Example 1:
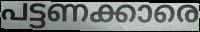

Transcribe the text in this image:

പട്ടണക്കാരെ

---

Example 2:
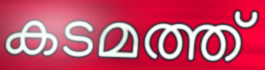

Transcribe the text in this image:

കടമത്ത്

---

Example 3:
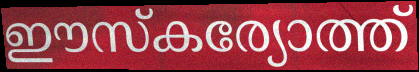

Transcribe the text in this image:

ഈസ്കര്യോത്ത്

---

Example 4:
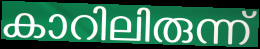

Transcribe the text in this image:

കാറിലിരുന്ന്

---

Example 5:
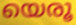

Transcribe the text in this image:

യെരൂ